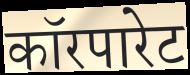
कॉरपारेट